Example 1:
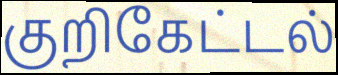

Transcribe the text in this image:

குறிகேட்டல்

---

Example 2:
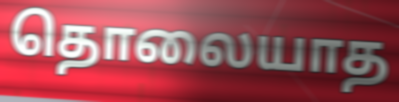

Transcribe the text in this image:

தொலையாத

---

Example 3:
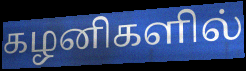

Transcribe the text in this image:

கழனிகளில்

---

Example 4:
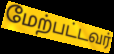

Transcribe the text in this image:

மேற்பட்டவர்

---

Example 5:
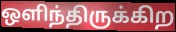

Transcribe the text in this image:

ஒளிந்திருக்கிற